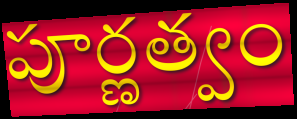
పూర్ణత్వం